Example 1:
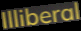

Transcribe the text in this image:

Illiberal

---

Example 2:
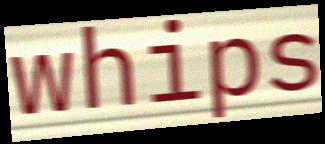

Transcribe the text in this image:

whips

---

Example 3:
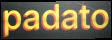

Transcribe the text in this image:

padato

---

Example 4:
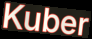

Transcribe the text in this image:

Kuber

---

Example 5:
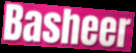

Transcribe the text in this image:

Basheer